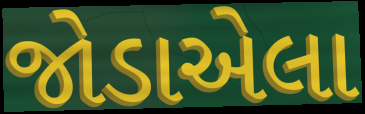
જોડાએલા